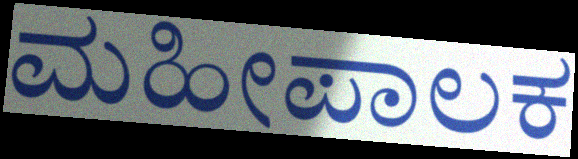
ಮಹೀಪಾಲಕ